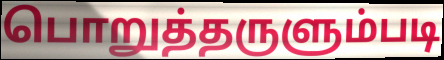
பொறுத்தருளும்படி